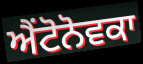
ਐਂਟੋਨੋਵਕਾ